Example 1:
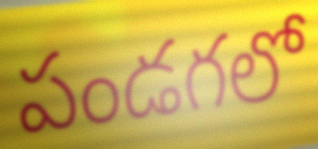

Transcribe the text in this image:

పండగలో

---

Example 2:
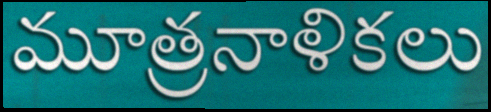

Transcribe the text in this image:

మూత్రనాళికలు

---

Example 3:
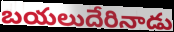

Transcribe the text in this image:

బయలుదేరినాడు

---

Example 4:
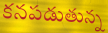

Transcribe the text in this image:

కనపడుతున్న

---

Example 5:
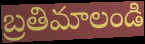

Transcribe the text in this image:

బ్రతిమాలండి